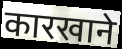
कारखाने